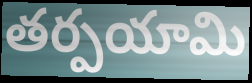
తర్పయామి